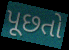
પૂછતો